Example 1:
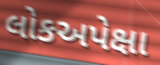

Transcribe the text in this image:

લોકઅપેક્ષા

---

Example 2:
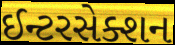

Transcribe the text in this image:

ઈન્ટરસેક્શન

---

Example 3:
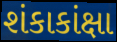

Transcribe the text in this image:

શંકાકાંક્ષા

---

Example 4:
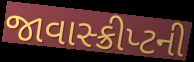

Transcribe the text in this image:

જાવાસ્ક્રીપ્ટની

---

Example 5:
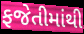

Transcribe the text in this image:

ફજેતીમાંથી